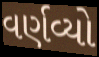
વર્ણવ્યો